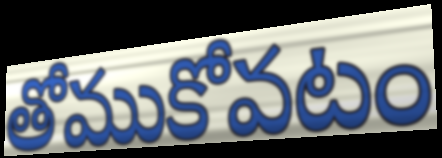
తోముకోవటం